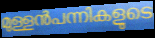
മുള്ളൻപന്നികളുടെ